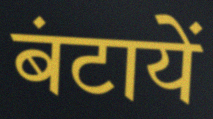
बंटायें